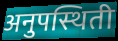
अनुपस्थिती